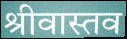
श्रीवास्तव